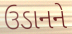
ઉડાનને